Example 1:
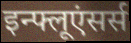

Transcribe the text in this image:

इन्फ्लूएंसर्स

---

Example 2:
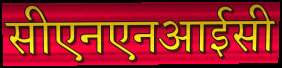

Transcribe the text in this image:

सीएनएनआईसी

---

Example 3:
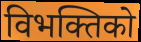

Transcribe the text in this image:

विभक्तिको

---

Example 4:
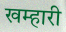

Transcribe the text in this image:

खम्हारी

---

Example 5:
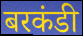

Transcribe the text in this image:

बरकंडी